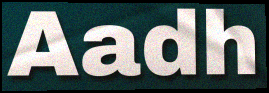
Aadh